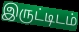
இருட்டிடம்